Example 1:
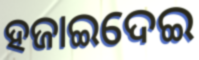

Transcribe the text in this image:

ହଜାଇଦେଇ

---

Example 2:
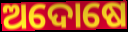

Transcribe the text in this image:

ଅଦୋଷେ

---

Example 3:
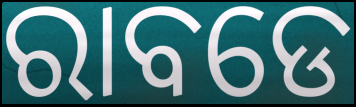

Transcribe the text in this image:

ରାବଡେ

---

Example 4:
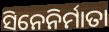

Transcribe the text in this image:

ସିନେନିର୍ମାତା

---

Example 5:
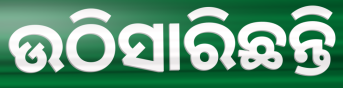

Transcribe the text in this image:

ଉଠିସାରିଛନ୍ତି